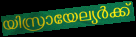
യിസ്രായേല്യർക്ക്